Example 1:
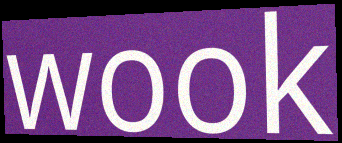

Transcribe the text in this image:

wook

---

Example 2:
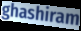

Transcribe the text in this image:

ghashiram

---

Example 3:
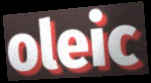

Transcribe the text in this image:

oleic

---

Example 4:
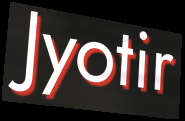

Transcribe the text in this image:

Jyotir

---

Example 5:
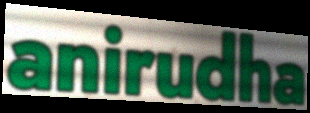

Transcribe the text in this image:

anirudha